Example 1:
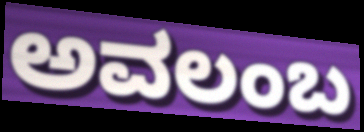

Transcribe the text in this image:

ಅವಲಂಬ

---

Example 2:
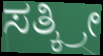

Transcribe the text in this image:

ಸತ್ಕ್ರೀ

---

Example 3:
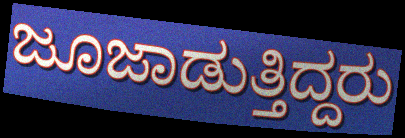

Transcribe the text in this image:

ಜೂಜಾಡುತ್ತಿದ್ದರು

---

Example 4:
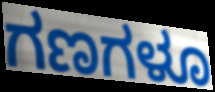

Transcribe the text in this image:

ಗಣಗಳೂ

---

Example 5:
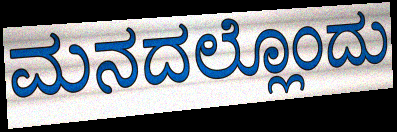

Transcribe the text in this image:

ಮನದಲ್ಲೊಂದು